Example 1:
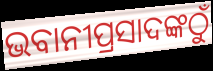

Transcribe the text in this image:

ଭବାନୀପ୍ରସାଦଙ୍କଠୁଁ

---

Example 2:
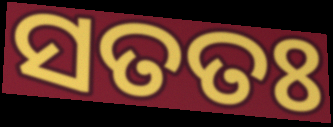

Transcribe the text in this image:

ସତତଃ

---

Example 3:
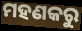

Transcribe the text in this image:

ମହଣକରୁ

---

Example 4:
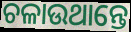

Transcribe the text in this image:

ଚଳାଉଥାନ୍ତେ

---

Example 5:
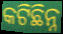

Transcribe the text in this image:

କଟିଛିନ୍ନ